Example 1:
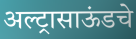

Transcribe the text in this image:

अल्ट्रासाऊंडचे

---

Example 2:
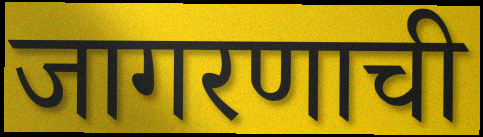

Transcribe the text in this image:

जागरणाची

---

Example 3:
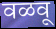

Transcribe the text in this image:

वळवू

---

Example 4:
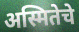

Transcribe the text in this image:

अस्मितेचे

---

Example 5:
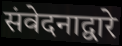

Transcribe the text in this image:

संवेदनाद्वारे